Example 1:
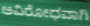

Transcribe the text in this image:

ಅವಿರೋಧವಾಗಿ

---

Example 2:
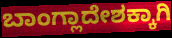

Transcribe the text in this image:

ಬಾಂಗ್ಲಾದೇಶಕ್ಕಾಗಿ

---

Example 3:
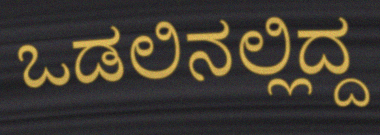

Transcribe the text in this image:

ಒಡಲಿನಲ್ಲಿದ್ದ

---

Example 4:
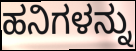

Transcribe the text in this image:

ಹನಿಗಳನ್ನು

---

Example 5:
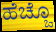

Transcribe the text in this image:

ಹೆಚ್ಚೊ